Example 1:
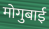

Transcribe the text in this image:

मोगुबाई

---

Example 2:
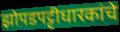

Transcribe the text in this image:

झोपडपट्टीधारकांचे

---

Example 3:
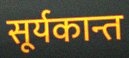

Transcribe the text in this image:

सूर्यकान्त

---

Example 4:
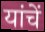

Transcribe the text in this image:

यांचें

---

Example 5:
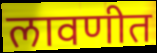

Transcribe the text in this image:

लावणीत